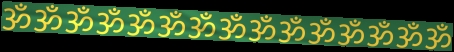
ॐॐॐॐॐॐॐॐॐॐॐॐॐॐॐ